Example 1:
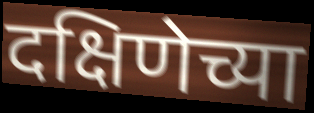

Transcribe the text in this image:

दक्षिणेच्या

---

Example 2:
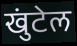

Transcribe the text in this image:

खुंटेल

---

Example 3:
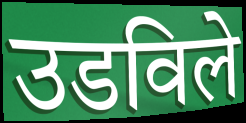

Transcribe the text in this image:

उडविले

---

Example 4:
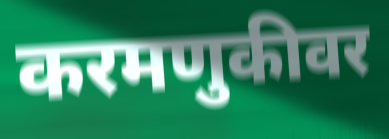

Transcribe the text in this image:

करमणुकीवर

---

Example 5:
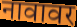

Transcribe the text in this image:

नावावर